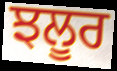
ਝਲੂਰ